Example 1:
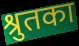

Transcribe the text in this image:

श्रुतका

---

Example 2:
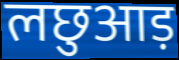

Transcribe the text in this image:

लछुआड़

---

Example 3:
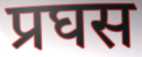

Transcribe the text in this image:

प्रघस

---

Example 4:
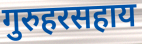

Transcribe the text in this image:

गुरुहरसहाय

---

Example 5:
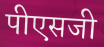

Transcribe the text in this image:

पीएसजी